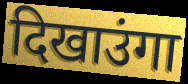
दिखाउंगा